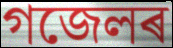
গজেলৰ